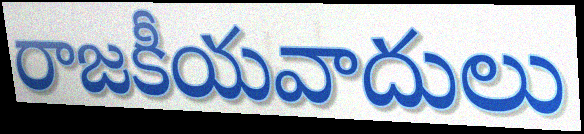
రాజకీయవాదులు